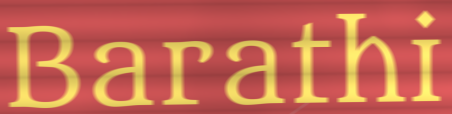
Barathi